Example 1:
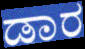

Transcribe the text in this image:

ಡಾರ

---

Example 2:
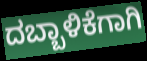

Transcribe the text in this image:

ದಬ್ಬಾಳಿಕೆಗಾಗಿ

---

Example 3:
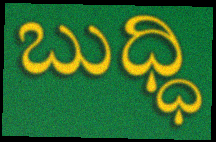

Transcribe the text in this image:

ಬುಧ್ಧಿ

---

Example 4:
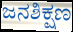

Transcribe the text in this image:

ಜನಶಿಕ್ಷಣ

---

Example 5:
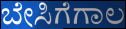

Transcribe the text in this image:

ಬೇಸಿಗೆಗಾಲ